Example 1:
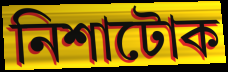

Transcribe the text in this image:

নিশাটোক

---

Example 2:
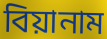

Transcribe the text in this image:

বিয়ানাম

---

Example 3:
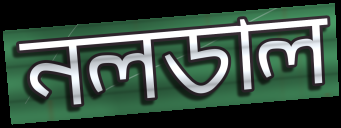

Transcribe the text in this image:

নলডাল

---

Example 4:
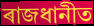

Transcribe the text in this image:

ৰাজধানীত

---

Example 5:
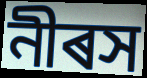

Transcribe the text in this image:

নীৰস